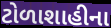
ટોળાશાહીના